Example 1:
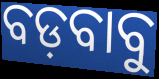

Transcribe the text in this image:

ବଡ଼ବାବୁ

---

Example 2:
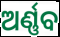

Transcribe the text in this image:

ଅର୍ଣ୍ଣବ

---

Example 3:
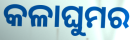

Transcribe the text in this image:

କଳାଘୁମର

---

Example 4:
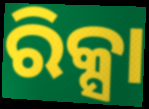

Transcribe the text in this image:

ରିକ୍ସା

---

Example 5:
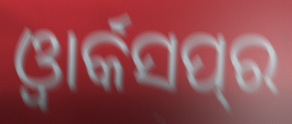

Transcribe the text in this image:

ଓ୍ୱାର୍କସପ୍‌ର